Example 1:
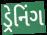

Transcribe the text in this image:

ડ્રેનિંગ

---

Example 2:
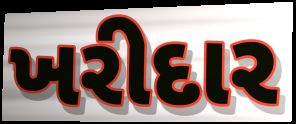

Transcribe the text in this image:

ખરીદાર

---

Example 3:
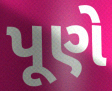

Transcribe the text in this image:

પૂણે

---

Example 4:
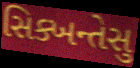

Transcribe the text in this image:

સિક્ખન્તેસુ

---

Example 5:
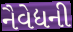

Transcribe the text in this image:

નૈવેદ્યની